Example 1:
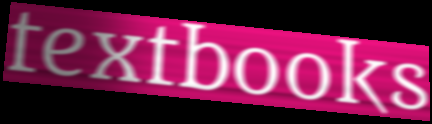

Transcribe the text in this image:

textbooks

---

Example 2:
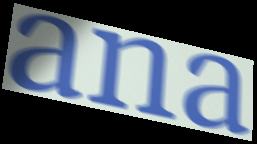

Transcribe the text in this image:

ana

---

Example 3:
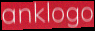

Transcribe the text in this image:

anklogo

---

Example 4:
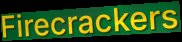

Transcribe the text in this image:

Firecrackers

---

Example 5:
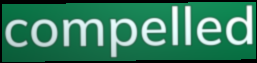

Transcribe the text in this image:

compelled